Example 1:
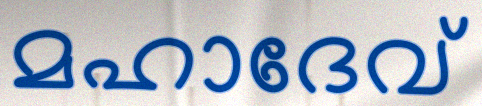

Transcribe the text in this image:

മഹാദേവ്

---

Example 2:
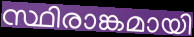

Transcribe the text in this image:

സ്ഥിരാങ്കമായി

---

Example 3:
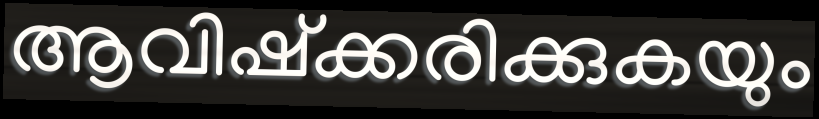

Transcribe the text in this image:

ആവിഷ്ക്കരിക്കുകയും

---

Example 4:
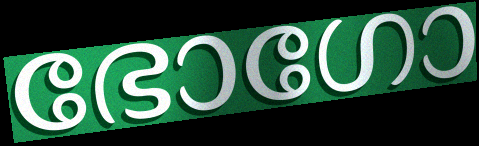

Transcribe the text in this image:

ഭോഗോ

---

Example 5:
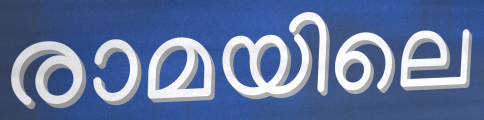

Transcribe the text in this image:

രാമയിലെ